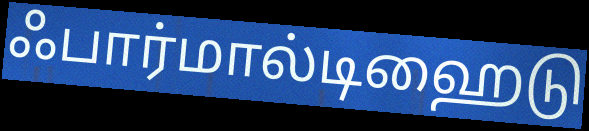
ஃபார்மால்டிஹைடு